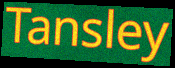
Tansley